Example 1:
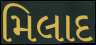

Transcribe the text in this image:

મિલાદ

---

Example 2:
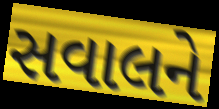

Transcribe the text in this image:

સવાલને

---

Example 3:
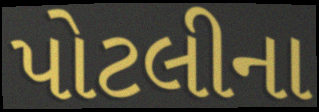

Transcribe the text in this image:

પોટલીના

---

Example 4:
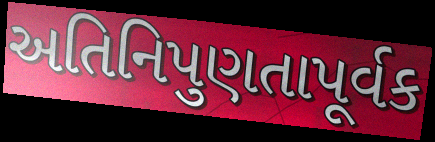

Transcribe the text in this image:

અતિનિપુણતાપૂર્વક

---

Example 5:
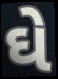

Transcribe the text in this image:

ઘે